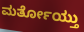
ಮರ್ತೋಯ್ತು